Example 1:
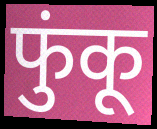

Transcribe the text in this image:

फुंकू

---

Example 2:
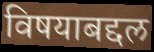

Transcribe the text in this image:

विषयाबद्दल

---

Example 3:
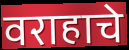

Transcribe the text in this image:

वराहाचे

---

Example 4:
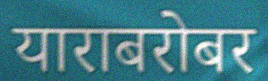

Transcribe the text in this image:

याराबरोबर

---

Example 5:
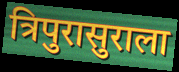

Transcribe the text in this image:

त्रिपुरासुराला